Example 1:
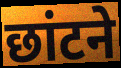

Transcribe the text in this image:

छांटने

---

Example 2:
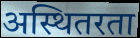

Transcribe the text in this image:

अस्थितरता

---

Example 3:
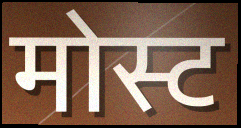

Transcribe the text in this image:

मोस्ट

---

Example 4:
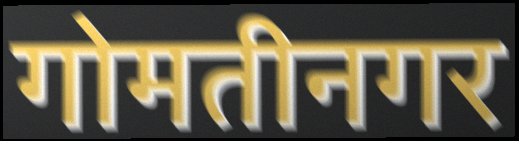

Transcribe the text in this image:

गोमतीनगर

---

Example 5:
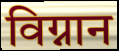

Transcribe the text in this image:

विग्नान